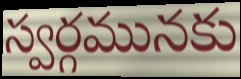
స్వర్గమునకు